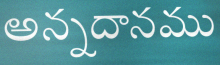
అన్నదానము